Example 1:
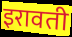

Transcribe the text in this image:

इरावती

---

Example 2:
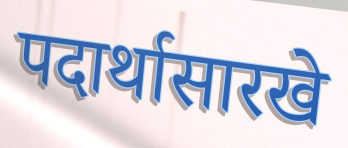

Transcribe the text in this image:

पदार्थासारखे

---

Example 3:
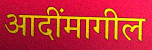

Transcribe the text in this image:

आदींमागील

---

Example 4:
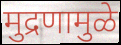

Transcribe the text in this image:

मुद्रणामुळे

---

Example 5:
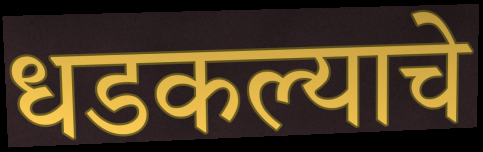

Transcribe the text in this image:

धडकल्याचे